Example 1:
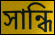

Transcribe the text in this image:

সান্ধি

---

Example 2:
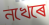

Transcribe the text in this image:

নখেৰে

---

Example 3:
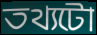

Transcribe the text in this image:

তথ্যটো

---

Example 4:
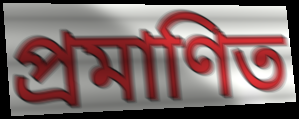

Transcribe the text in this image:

প্ৰমাণিত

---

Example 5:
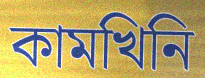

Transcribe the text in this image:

কামখিনি